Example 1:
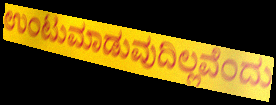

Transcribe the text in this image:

ಉಂಟುಮಾಡುವುದಿಲ್ಲವೆಂದು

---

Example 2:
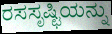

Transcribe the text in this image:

ರಸಸೃಷ್ಟಿಯನ್ನು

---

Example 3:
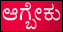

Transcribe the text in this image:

ಆಗ್ಬೇಕು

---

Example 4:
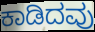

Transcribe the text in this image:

ಕಾಡಿದವು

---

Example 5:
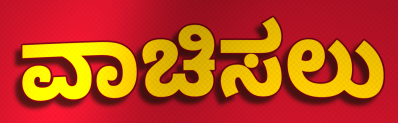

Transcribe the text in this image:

ವಾಚಿಸಲು